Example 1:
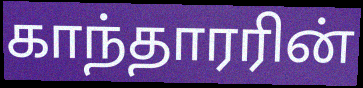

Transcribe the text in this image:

காந்தாரரின்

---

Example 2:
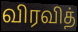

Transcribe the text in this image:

விரவித்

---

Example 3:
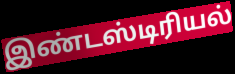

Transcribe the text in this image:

இண்டஸ்டிரியல்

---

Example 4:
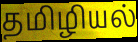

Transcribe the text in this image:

தமிழியல்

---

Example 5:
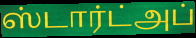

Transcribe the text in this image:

ஸ்டார்ட்அப்